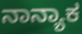
ನಾನ್ಯಾಕ